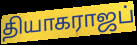
தியாகராஜப்